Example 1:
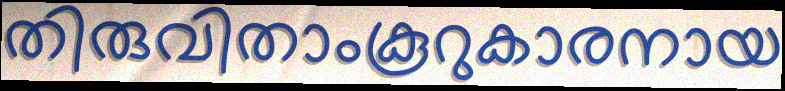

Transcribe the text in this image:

തിരുവിതാംകൂറുകാരനായ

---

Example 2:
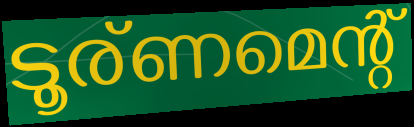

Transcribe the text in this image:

ടൂര്ണമെന്റ്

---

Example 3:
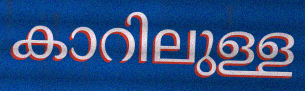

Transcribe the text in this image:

കാറിലുള്ള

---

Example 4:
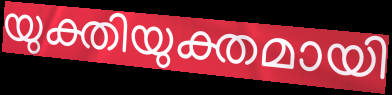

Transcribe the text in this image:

യുക്തിയുക്തമായി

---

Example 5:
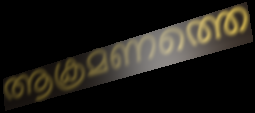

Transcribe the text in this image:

ആക്രമണത്തെ